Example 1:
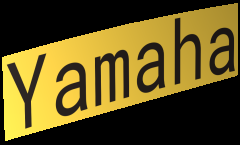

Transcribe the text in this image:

Yamaha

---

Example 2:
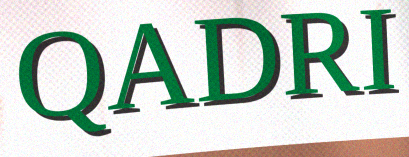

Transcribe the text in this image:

QADRI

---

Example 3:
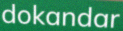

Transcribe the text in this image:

dokandar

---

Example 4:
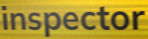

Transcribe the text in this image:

inspector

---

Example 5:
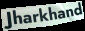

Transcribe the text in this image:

Jharkhand